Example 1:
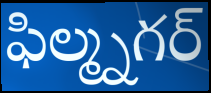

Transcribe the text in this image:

ఫిల్మ్నగర్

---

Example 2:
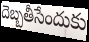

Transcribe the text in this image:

దెబ్బతీసేందుకు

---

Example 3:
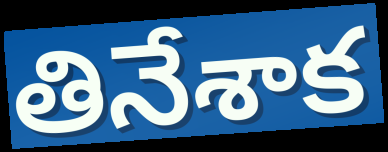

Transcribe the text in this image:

తినేశాక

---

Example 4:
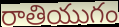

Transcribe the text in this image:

రాతియుగం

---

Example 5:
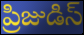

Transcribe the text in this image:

ప్రిజుడిస్